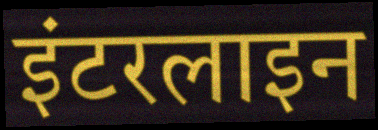
इंटरलाइन